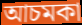
আচমকা